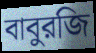
বাবুরজি